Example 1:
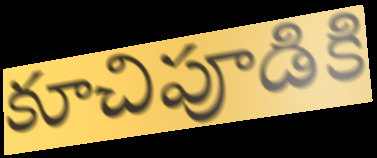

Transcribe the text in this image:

కూచిపూడికి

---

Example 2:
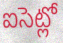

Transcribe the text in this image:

ఐసెట్లో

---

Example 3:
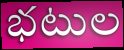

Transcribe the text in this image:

భటుల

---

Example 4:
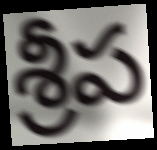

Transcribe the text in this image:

శ్రీప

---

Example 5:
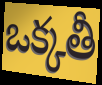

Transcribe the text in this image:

ఒక్కతీ